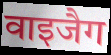
वाइजैग